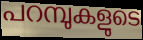
പറമ്പുകളുടെ